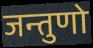
जन्तुणो